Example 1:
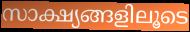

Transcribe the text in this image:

സാക്ഷ്യങ്ങളിലൂടെ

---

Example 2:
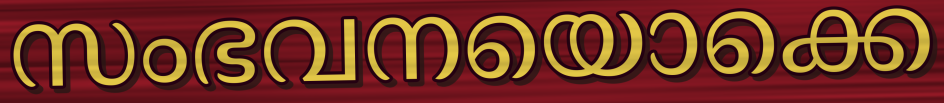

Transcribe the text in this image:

സംഭവനയൊക്കെ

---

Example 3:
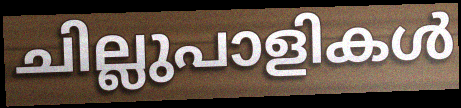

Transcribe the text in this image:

ചില്ലുപാളികൾ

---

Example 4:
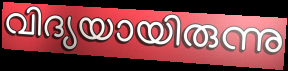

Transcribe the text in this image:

വിദ്യയായിരുന്നു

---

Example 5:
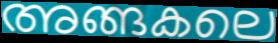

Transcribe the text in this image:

അങ്ങകലെ